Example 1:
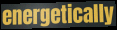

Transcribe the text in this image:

energetically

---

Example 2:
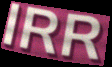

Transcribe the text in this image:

IRR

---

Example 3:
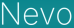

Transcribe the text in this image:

Nevo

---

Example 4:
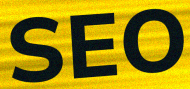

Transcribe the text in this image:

SEO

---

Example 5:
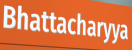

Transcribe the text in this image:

Bhattacharyya